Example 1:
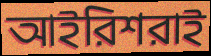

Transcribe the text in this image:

আইরিশরাই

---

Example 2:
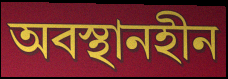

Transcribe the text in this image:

অবস্থানহীন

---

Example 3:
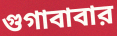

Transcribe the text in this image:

গুগাবাবার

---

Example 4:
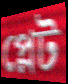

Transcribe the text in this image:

প্লেট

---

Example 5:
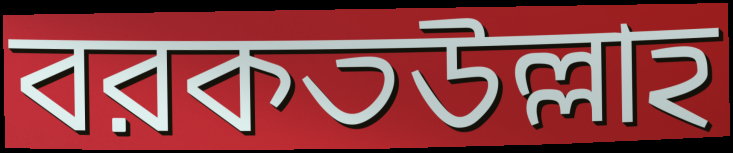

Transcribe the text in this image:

বরকতউল্লাহ